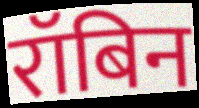
रॉबिन